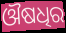
ଔଷଧିର